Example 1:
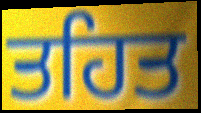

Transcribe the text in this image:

ਤਹਿਤ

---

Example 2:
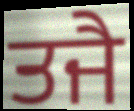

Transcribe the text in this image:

ਤਜੈ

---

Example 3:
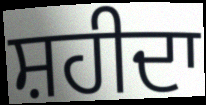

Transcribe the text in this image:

ਸ਼ਹੀਦਾ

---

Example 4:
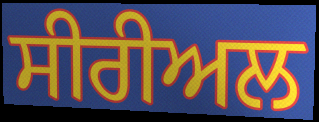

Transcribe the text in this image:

ਸੀਰੀਅਲ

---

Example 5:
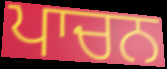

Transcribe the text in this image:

ਪਾਚਨ